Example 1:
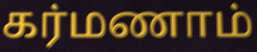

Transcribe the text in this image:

கர்மணாம்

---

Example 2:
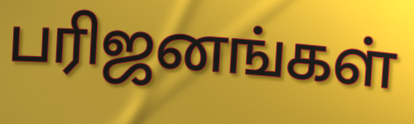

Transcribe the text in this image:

பரிஜனங்கள்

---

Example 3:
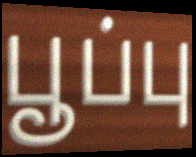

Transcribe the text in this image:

பூப்பு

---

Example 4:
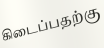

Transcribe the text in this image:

கிடைப்பதற்கு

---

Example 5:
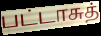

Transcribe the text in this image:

பட்டாசுத்